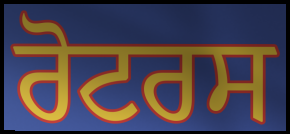
ਰੋਟਰਸ